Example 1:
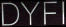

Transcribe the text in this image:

DYFI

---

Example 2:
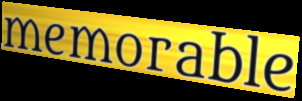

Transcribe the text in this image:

memorable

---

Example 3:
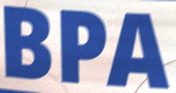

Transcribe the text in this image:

BPA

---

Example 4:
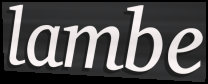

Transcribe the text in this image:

lambe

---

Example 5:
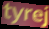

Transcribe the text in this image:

tyrej